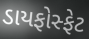
ડાયફોસ્ફેટ